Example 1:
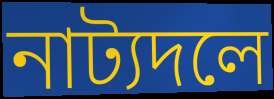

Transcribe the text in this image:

নাট্যদলে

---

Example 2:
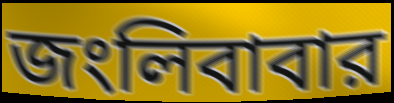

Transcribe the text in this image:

জংলিবাবার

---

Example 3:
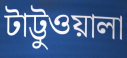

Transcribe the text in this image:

টাট্টুওয়ালা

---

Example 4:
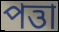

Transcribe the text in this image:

পত্তা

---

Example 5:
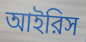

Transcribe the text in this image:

আইরিস